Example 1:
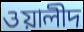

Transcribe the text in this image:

ওয়ালীদ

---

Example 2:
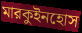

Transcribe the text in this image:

মারকুইনহোস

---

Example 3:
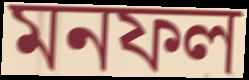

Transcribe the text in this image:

মনফল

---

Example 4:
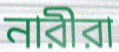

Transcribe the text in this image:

নারীরা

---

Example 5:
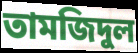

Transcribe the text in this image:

তামজিদুল